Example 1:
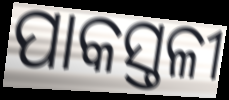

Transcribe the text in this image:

ପାକସ୍ତଳୀ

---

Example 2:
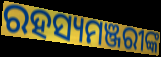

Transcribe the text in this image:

ରହସ୍ୟମଞ୍ଜରୀଙ୍କ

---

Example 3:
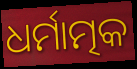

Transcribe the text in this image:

ଧର୍ମାତ୍ମକ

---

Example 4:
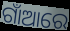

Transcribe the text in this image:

ଗାଁଆରେ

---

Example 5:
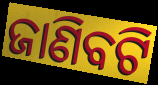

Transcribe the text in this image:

ଜାଣିବଟି